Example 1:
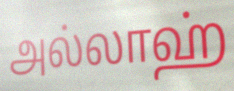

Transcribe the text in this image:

அல்லாஹ்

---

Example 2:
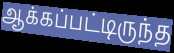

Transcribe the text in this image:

ஆக்கப்பட்டிருந்த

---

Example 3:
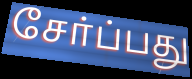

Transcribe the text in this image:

சேர்ப்பது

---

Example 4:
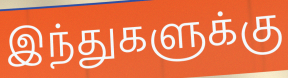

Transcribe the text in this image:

இந்துகளுக்கு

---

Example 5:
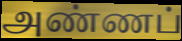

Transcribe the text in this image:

அண்ணப்